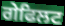
ਗੇਫਿਲਟ